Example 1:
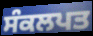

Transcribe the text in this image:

ਸੰਕਲਪਤ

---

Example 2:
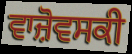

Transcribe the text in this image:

ਵਾਜ਼ੋਵਸਕੀ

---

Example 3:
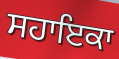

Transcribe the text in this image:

ਸਹਾਇਕਾ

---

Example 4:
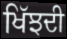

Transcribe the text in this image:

ਖਿੱਝਦੀ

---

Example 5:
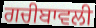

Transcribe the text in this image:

ਗਚੀਬਾਵਲੀ